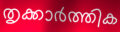
തൃക്കാർത്തിക